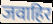
जवाहिर